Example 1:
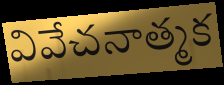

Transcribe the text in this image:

వివేచనాత్మక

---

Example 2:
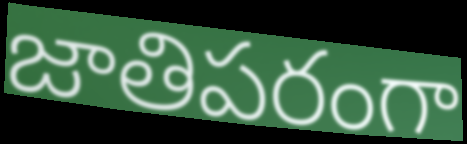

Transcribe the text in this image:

జాతిపరంగా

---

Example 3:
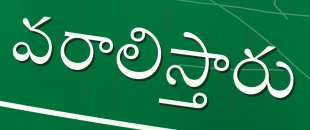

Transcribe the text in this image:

వరాలిస్తారు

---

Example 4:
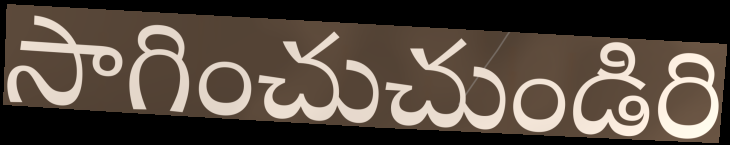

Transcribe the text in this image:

సాగించుచుండిరి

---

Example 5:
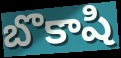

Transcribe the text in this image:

బొకాషి